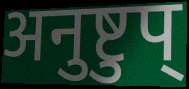
अनुष्टुप्